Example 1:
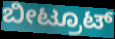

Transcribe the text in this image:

ಬೀಟ್ರೂಟ್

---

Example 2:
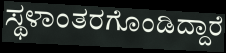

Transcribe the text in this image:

ಸ್ಥಳಾಂತರಗೊಂಡಿದ್ದಾರೆ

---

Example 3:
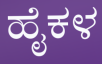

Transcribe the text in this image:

ಹೈಕಳ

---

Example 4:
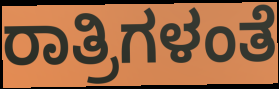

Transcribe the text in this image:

ರಾತ್ರಿಗಳಂತೆ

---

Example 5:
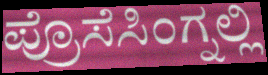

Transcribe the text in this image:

ಪ್ರೊಸೆಸಿಂಗ್ನಲ್ಲಿ